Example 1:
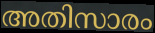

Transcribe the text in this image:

അതിസാരം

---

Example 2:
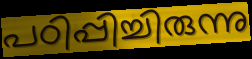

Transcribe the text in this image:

പഠിപ്പിച്ചിരുന്നു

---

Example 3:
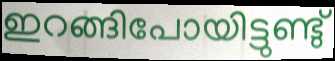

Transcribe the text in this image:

ഇറങ്ങിപോയിട്ടുണ്ടു്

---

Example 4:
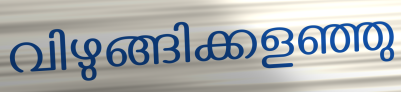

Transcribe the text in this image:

വിഴുങ്ങിക്കളഞ്ഞു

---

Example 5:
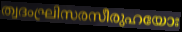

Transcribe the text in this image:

ത്വദംഘ്രിസരസീരുഹയോഃ